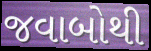
જવાબોથી